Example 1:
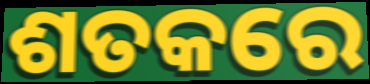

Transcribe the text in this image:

ଶତକରେ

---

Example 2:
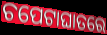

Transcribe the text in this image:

ଚପେଟାଘାତରେ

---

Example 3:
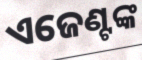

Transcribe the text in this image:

ଏଜେଣ୍ଟଙ୍କ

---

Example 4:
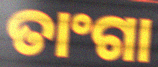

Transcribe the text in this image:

ତାଂଗା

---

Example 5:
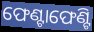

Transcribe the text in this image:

ଫେଣ୍ଟାଫେଣ୍ଟି